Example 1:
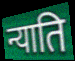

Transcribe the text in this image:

न्याति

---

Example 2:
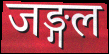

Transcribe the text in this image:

जङ्गल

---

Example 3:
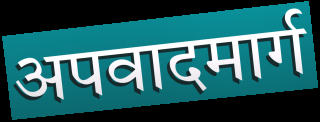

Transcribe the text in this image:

अपवादमार्ग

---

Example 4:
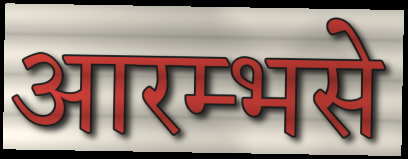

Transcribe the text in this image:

आरम्भसे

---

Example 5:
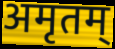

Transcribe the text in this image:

अमृतम्